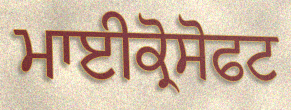
ਮਾਈਕ੍ਰੋਸੋਫਟ